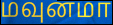
மவுனமா